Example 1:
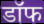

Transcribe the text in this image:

डॉफ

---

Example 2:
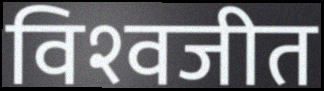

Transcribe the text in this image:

विश्वजीत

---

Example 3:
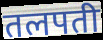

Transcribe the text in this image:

तलपती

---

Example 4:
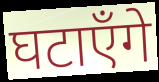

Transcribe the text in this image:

घटाएँगे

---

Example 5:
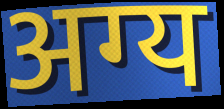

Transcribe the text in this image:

अग्य